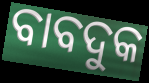
ବାବଦୁକ